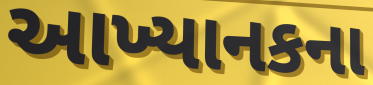
આખ્યાનકના